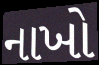
નાખો